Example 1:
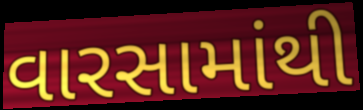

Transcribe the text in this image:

વારસામાંથી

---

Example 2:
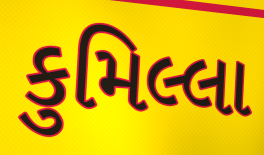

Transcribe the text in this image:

કુમિલ્લા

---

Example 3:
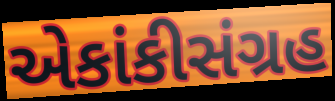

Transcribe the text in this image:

એકાંકીસંગ્રહ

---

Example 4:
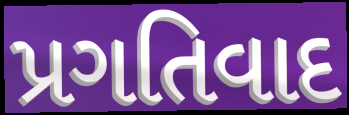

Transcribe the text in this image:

પ્રગતિવાદ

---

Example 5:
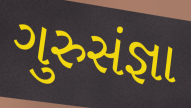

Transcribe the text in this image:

ગુરુસંજ્ઞા